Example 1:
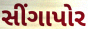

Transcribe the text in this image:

સીંગાપોર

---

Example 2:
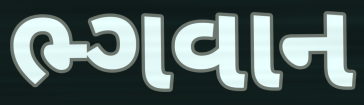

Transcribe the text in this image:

ભ્ગવાન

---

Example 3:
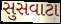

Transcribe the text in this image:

સુસવાટા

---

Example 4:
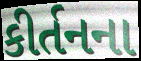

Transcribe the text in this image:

કીર્તનના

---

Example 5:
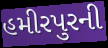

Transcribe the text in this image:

હમીરપુરની